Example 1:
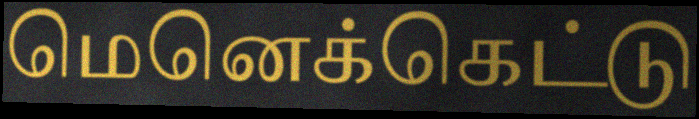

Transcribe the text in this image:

மெனெக்கெட்டு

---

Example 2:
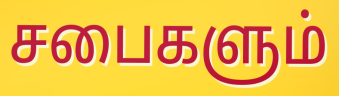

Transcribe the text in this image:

சபைகளும்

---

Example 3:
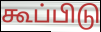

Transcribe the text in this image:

கூப்பிடு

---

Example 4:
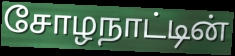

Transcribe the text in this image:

சோழநாட்டின்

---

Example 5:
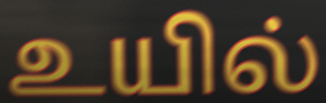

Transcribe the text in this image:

உயில்